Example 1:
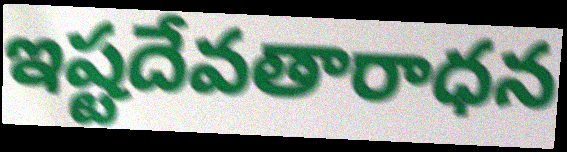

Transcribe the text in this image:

ఇష్టదేవతారాధన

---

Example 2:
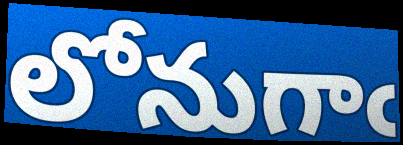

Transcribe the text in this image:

లోనుగాఁ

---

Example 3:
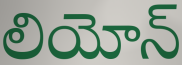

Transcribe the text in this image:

లియోన్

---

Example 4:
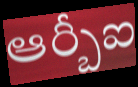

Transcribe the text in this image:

ఆర్బీఐ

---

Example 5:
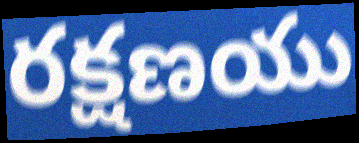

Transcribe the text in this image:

రక్షణయు